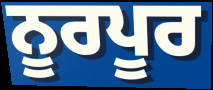
ਨੂਰਪੂਰ